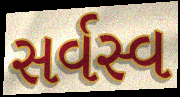
સર્વસ્વ